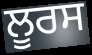
ਲੂਰਸ